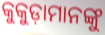
କୁକୁଡ଼ାମାନଙ୍କୁ